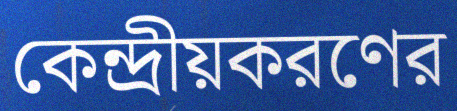
কেন্দ্রীয়করণের